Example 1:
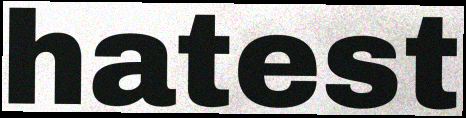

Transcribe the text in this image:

hatest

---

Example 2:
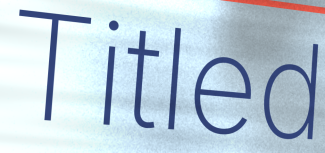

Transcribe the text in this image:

Titled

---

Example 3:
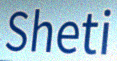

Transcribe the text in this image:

Sheti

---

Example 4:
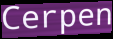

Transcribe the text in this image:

Cerpen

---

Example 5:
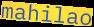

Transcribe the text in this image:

mahilao